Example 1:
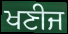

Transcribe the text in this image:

ਖਣੀਜ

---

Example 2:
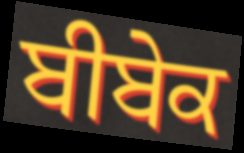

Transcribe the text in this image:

ਬੀਬੇਕ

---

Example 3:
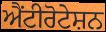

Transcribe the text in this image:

ਐਂਟੀਰੋਟੇਸ਼ਨ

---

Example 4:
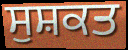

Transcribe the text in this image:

ਸੁਸ਼ਕਤ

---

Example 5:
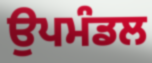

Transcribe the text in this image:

ਉਪਮੰਡਲ